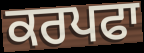
ਕਰਪਫਾ